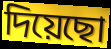
দিয়েছো